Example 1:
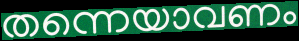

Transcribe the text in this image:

തന്നെയാവണം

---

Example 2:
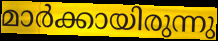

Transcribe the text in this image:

മാർക്കായിരുന്നു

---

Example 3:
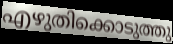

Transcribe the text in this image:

എഴുതിക്കൊടുത്തു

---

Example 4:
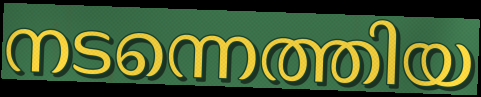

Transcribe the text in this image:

നടന്നെത്തിയ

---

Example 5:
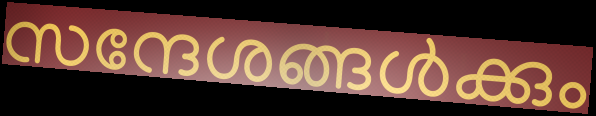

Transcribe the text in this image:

സന്ദേശങ്ങൾക്കും